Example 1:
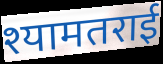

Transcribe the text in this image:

श्यामतराई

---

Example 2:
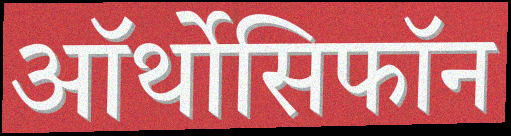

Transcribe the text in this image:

ऑर्थोसिफॉन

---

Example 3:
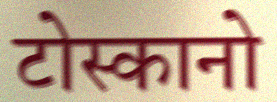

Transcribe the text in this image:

टोस्कानो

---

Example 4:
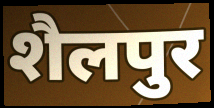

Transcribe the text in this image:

शैलपुर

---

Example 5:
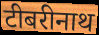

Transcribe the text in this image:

टीबरीनाथ